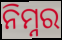
ନିମ୍ନର